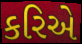
કરિએ